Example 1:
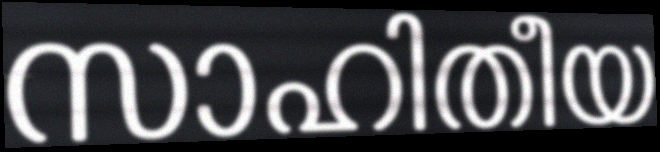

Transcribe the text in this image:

സാഹിതീയ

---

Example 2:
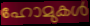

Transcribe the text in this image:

ഹോമുകൾ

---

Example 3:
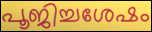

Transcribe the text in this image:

പൂജിച്ചശേഷം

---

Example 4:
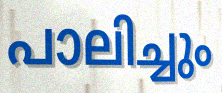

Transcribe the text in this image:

പാലിച്ചും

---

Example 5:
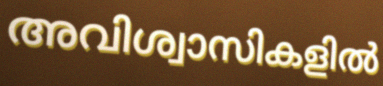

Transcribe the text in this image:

അവിശ്വാസികളിൽ